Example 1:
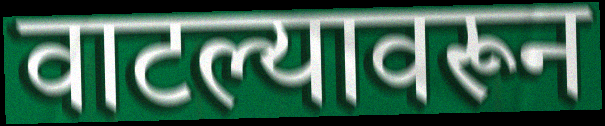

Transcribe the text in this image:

वाटल्यावरून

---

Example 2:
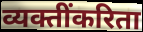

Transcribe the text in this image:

व्यक्तींकरिता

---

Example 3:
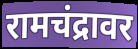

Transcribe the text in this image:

रामचंद्रावर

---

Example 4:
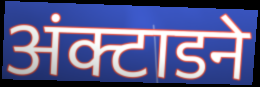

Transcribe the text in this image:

अंक्टाडने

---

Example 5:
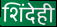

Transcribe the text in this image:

शिंदेही